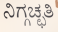
ನಿಗ್ಗಚ್ಛತಿ